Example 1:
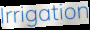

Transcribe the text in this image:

Irrigation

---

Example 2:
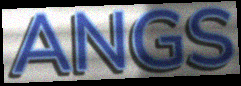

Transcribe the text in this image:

ANGS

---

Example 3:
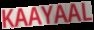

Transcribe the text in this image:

KAAYAAL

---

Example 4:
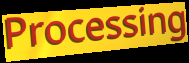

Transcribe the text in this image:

Processing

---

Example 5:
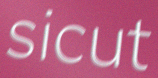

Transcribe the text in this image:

sicut